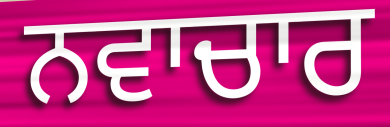
ਨਵਾਚਾਰ